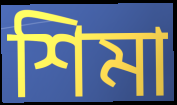
শিমা